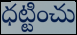
ధట్టించు